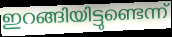
ഇറങ്ങിയിട്ടുണ്ടെന്ന്